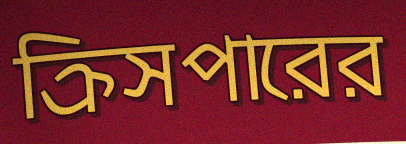
ক্রিসপারের